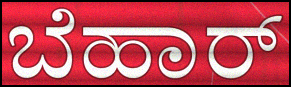
ಬೆಹಾರ್